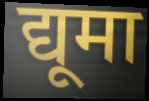
द्यूमा